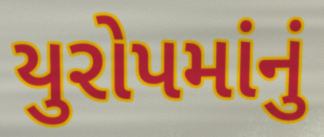
યુરોપમાંનું